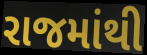
રાજમાંથી